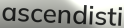
ascendisti